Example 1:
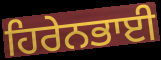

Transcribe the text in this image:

ਹਿਰੇਨਭਾਈ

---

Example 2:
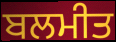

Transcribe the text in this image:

ਬਲਮੀਤ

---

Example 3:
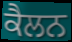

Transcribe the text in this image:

ਕੈਲਨ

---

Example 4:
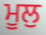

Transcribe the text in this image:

ਮੂਲੁ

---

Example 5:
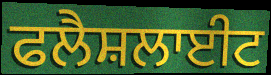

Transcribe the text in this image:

ਫਲੈਸ਼ਲਾਈਟ